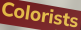
Colorists